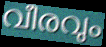
വീരവും